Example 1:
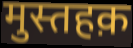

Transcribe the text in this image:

मुस्तहक़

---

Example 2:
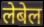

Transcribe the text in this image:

लेबेल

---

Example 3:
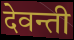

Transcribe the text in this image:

देवन्ती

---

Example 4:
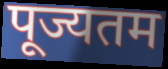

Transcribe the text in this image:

पूज्यतम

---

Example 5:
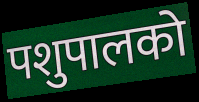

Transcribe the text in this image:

पशुपालको